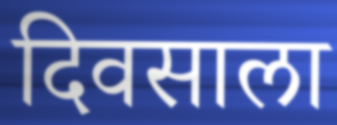
दिवसाला